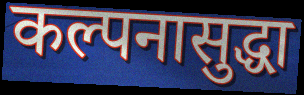
कल्पनासुद्धा